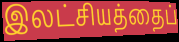
இலட்சியத்தைப்